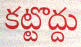
కట్టొద్దు